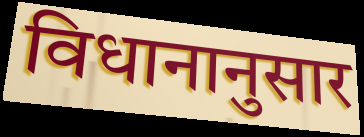
विधानानुसार